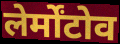
लेर्मोंटोव